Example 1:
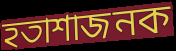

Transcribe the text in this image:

হতাশাজনক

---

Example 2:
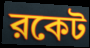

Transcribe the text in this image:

রকেট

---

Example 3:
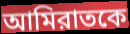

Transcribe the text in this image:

আমিরাতকে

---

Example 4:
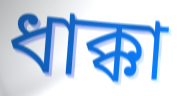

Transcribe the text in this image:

ধাক্কা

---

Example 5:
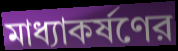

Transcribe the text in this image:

মাধ্যাকর্ষণের